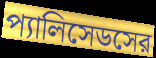
প্যালিসেডসের